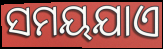
ସମୟଯାଏ